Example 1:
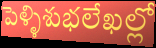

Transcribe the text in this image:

పెళ్ళిశుభలేఖల్లో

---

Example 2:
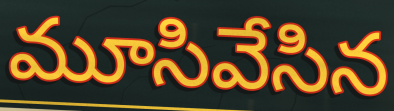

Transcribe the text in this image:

మూసివేసిన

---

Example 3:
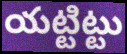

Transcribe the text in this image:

యట్టిట్టు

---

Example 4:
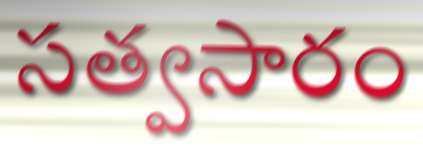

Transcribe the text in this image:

సత్వసారం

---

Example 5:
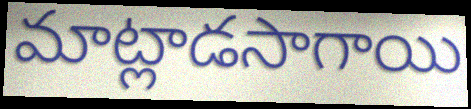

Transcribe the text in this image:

మాట్లాడసాగాయి